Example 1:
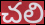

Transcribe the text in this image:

చలి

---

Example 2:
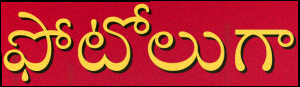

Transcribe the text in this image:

ఫోటోలుగా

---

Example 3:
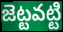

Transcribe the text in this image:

జెట్టవట్టి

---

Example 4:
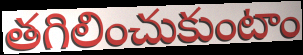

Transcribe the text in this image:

తగిలించుకుంటాం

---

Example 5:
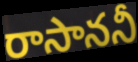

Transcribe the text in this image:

రాసాననీ